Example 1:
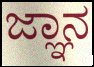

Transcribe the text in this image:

ಜ್ಞಾನ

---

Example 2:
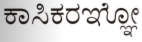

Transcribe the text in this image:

ಕಾಸಿಕರಞ್ಞೋ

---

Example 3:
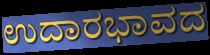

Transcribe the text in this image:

ಉದಾರಭಾವದ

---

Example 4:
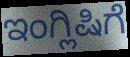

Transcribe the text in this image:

ಇಂಗ್ಲಿಷಿಗೆ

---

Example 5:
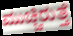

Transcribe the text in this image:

ಮುಚ್ಚಿರುತ್ತೆ